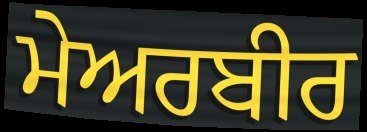
ਮੇਅਰਬੀਰ